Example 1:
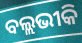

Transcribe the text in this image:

ବଲ୍ଲଭୀକି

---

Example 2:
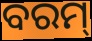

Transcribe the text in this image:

ବରମ୍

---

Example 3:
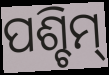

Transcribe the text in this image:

ପଶ୍ଚିମ୍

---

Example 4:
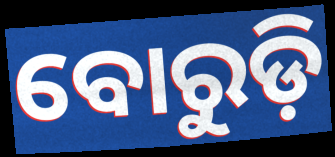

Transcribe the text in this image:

ବୋରୁଡ଼ି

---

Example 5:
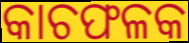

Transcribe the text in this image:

କାଚଫଳକ